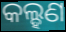
କଲ୍ହଣ